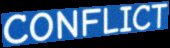
CONFLICT